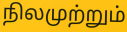
நிலமுற்றும்